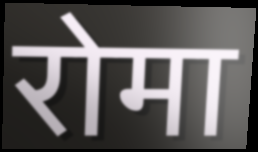
रोमा